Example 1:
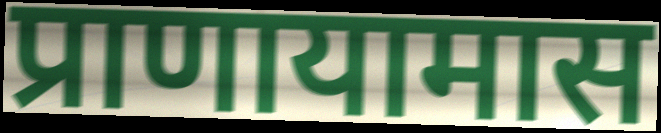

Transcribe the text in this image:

प्राणायामास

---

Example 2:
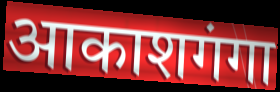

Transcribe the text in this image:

आकाशगंगा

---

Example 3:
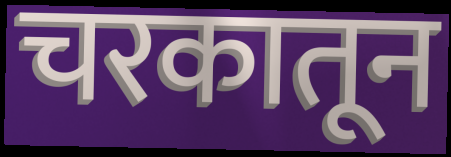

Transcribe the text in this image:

चरकातून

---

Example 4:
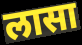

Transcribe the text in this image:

लासा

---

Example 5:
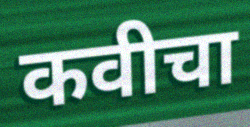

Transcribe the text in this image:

कवीचा